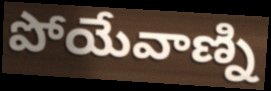
పోయేవాణ్ని